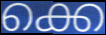
ക്കെ